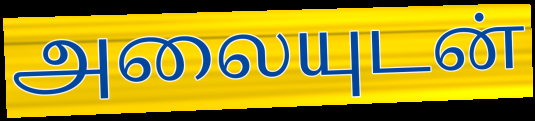
அலையுடன்